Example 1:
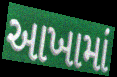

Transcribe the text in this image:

આખામાં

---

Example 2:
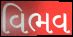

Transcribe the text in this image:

વિભવ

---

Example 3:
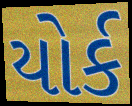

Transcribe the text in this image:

યોર્ક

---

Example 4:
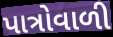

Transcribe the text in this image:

પાત્રોવાળી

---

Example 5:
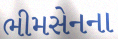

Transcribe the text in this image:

ભીમસેનના